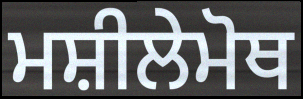
ਮਸ਼ੀਲੇਮੋਥ